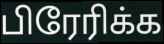
பிரேரிக்க